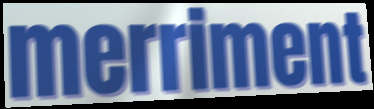
merriment